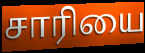
சாரியை